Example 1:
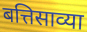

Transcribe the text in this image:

बत्तिसाव्या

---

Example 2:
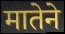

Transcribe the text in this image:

मातेने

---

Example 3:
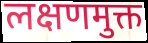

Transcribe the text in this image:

लक्षणमुक्त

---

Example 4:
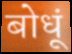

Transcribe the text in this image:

बोधूं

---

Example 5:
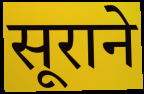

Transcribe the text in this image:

सूराने